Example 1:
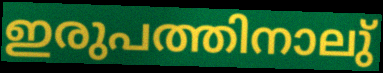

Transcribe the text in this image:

ഇരുപത്തിനാലു്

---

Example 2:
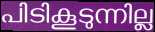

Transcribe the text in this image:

പിടികൂടുന്നില്ല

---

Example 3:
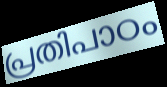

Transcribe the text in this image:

പ്രതിപാഠം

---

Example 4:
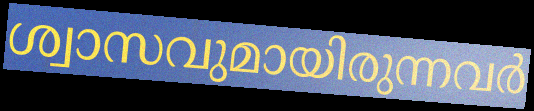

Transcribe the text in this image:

ശ്വാസവുമായിരുന്നവർ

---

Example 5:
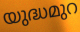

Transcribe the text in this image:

യുദ്ധമുറ